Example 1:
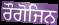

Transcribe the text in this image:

ਰੌਗੋਜਿਨ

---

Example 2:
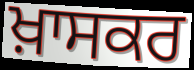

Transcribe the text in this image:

ਖ਼ਾਸਕਰ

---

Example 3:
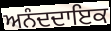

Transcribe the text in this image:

ਅਨੰਦਦਾਇਕ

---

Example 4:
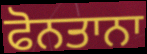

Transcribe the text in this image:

ਫੋਨਤਾਨਾ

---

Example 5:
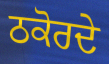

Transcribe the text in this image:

ਠਕੋਰਦੇ